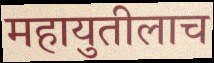
महायुतीलाच